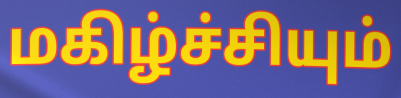
மகிழ்ச்சியும்